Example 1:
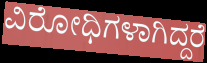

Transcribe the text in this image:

ವಿರೋಧಿಗಳಾಗಿದ್ದರೆ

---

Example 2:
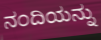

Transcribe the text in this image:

ನಂದಿಯನ್ನು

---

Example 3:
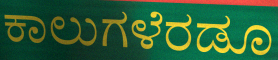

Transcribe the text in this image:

ಕಾಲುಗಳೆರಡೂ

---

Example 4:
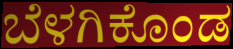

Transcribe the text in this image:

ಬೆಳಗಿಕೊಂಡ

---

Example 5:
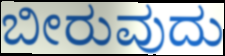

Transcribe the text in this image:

ಬೀರುವುದು